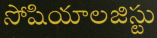
సోషియాలజిస్టు